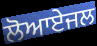
ਲੋਆਏਜਲ